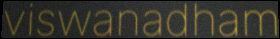
viswanadham